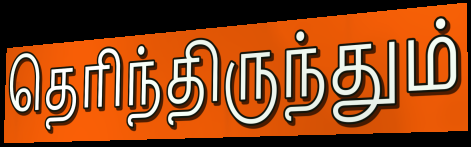
தெரிந்திருந்தும்